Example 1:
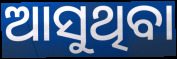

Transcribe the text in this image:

ଆସୁଥିବା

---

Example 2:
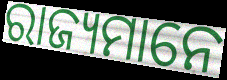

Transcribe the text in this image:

ରାଜ୍ୟମାନେ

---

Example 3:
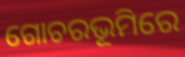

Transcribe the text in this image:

ଗୋଚରଭୂମିରେ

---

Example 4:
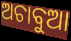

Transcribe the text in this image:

ଅଚାବୁଆ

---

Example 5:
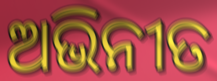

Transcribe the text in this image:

ଅଭିନୀତ